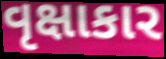
વૃક્ષાકાર